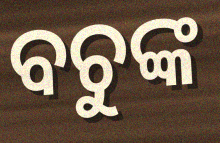
ବଚୁଙ୍କ